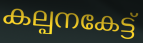
കല്പനകേട്ട്